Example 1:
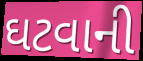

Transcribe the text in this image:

ઘટવાની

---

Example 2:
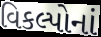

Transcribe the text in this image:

વિકલ્પોનાં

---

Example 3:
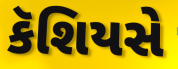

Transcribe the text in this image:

કૅશિયસે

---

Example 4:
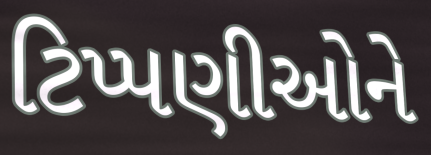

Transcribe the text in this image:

ટિપ્પણીઓને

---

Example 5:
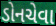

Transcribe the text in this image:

ડોનચેવા